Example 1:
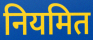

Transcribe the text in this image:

नियमित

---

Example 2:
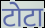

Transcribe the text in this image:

टोटा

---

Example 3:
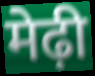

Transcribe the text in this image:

मेढ़ी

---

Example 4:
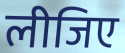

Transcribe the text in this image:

लीजिए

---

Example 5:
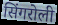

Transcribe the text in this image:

सिंगरोली